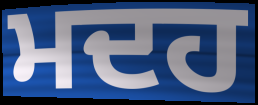
ਮਦਹ